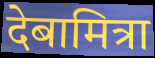
देबामित्रा